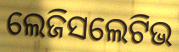
ଲେଜିସଲେଟିଭ